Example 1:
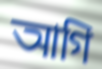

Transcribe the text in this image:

আগি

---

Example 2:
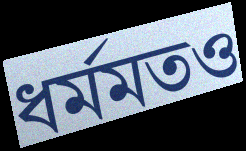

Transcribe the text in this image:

ধর্মমতও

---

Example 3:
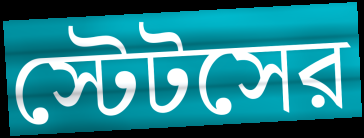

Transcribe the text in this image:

স্টেটসের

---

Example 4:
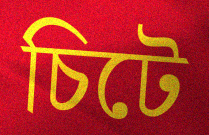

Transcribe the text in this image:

চিটে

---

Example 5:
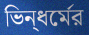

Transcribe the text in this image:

ভিন্‌ধর্মের